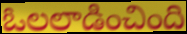
ఓలలాడించింది